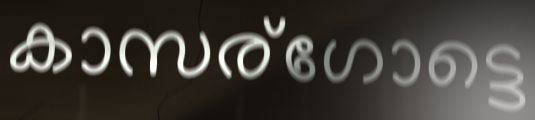
കാസര്ഗോട്ടെ